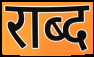
राब्द